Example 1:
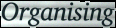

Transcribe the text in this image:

Organising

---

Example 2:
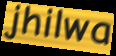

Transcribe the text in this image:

jhilwa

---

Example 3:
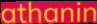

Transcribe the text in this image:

athanin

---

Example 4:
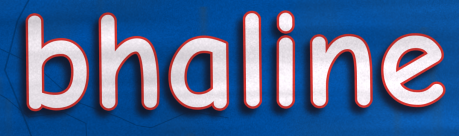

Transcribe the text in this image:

bhaline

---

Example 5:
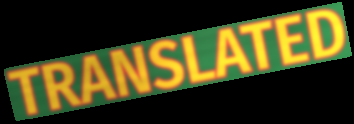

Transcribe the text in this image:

TRANSLATED